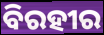
ବିରହୀର